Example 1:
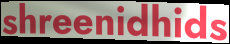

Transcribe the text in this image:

shreenidhids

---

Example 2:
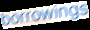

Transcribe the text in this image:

borrowings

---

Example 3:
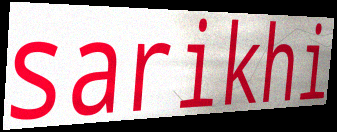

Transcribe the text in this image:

sarikhi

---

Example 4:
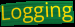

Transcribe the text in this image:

Logging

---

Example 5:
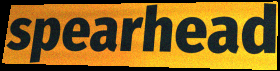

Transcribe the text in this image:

spearhead